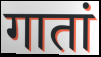
गातां